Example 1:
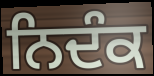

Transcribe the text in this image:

ਨਿਦੰਕ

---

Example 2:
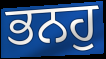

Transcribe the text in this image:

ਭਨਹੁ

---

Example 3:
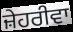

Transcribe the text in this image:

ਜ਼ੇਹਰੀਵਾ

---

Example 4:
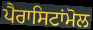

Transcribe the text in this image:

ਪੈਰਾਸਿਟਾਂਮੋਲ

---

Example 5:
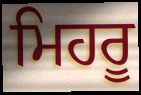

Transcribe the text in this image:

ਮਿਹਰੂ